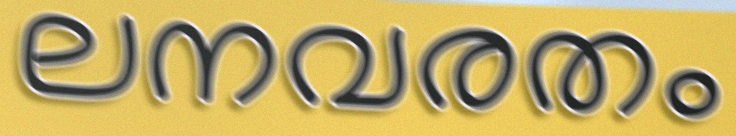
ലനവരതം